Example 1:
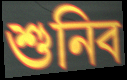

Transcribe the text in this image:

শুনিব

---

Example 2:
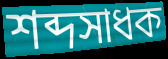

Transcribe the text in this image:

শব্দসাধক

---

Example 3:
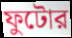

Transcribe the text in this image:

ফুটোর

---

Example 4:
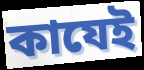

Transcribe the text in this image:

কাযেই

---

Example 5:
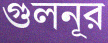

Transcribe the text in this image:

গুলনূর